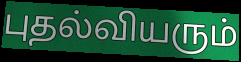
புதல்வியரும்